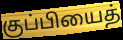
குப்பியைத்